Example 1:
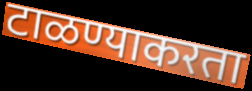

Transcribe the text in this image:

टाळण्याकरता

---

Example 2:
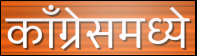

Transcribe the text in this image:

काँग्रेसमध्ये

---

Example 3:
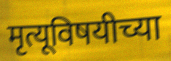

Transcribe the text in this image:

मृत्यूविषयीच्या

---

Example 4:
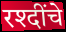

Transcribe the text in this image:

रश्दींचे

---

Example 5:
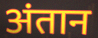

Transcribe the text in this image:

अंतान